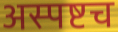
अस्पष्टच